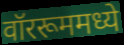
वॉररूममध्ये